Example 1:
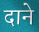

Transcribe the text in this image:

दाने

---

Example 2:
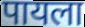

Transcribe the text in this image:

पायला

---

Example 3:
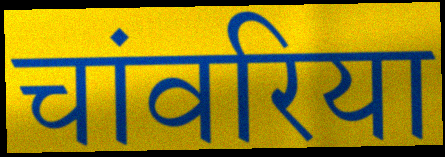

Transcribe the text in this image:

चांवरिया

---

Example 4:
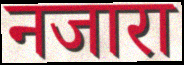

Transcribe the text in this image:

नजारा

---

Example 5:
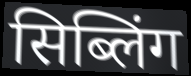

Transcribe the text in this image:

सिब्लिंग